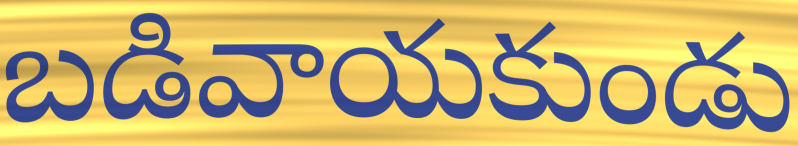
బడివాయకుండు